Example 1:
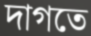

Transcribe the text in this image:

দাগতে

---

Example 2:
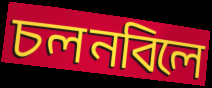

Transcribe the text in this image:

চলনবিলে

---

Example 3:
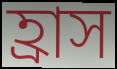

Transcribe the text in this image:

হ্রাস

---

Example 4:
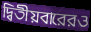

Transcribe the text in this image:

দ্বিতীয়বারেরও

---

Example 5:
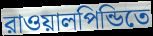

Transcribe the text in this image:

রাওয়ালপিন্ডিতে